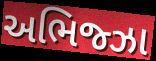
અભિજ્ઝા